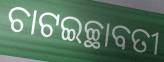
ଚାଟଇଚ୍ଛାବତୀ